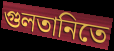
গুলতানিতে